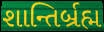
શાન્તિર્બ્રહ્મ